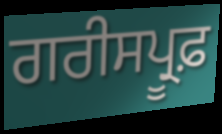
ਗਰੀਸਪ੍ਰੂਫ਼